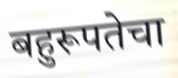
बहुरूपतेचा